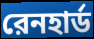
রেনহার্ড